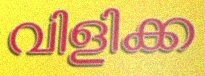
വിളിക്ക